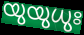
യുയുധുഃ